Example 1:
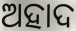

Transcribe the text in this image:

ଅହାଦ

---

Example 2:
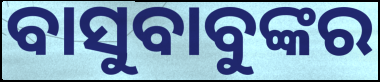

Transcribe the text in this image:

ବାସୁବାବୁଙ୍କର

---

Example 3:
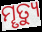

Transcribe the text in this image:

ମୄତ୍ୟୁ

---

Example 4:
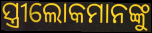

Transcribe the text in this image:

ସ୍ତ୍ରୀଲୋକମାନଙ୍କୁ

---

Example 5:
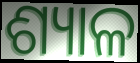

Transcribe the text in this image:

ଶ୍ୟାଳ